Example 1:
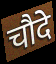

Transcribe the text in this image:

चौदे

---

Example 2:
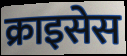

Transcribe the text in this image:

क्राइसेस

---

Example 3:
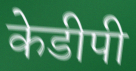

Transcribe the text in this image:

केडीपी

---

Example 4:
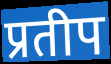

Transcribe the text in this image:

प्रतीप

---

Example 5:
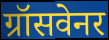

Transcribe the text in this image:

ग्रॉसवेनर